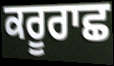
ਕਰੂਰਾਛ